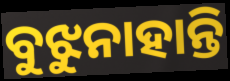
ବୁଝୁନାହାନ୍ତି